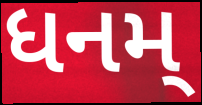
ધનમ્